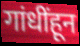
गांधींहून